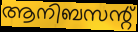
ആനിബസന്റ്